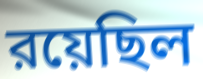
রয়েছিল